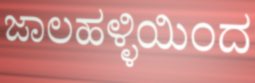
ಜಾಲಹಳ್ಳಿಯಿಂದ